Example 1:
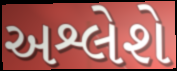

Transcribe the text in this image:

અશ્લેશે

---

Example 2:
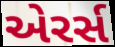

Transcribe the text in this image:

એરર્સ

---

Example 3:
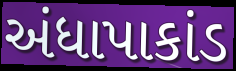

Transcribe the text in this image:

અંધાપાકાંડ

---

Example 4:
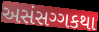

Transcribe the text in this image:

અસંસગ્ગકથા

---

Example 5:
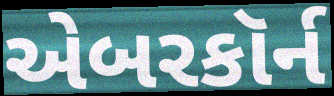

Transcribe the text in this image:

એબરકૉર્ન